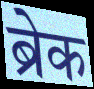
ब्रेक